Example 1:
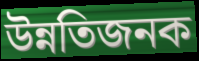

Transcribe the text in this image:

উন্নতিজনক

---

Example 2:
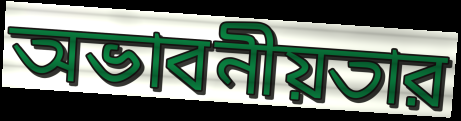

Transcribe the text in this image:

অভাবনীয়তার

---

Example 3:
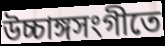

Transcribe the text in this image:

উচ্চাঙ্গসংগীতে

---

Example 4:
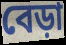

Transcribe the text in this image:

বেড়া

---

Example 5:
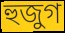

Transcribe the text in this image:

হুজুগ